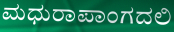
ಮಧುರಾಪಾಂಗದಲಿ